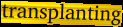
transplanting